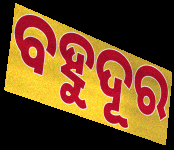
ବହୁଦୂର